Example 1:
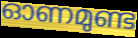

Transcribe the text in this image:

ഓണമുണ്ട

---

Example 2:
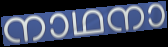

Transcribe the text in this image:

നാഥനാ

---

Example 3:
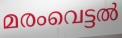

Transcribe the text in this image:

മരംവെട്ടൽ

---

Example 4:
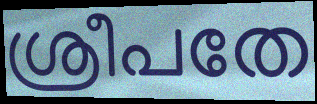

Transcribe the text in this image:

ശ്രീപതേ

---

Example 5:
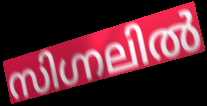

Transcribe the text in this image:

സിഗ്നലിൽ